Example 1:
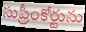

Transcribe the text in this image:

సుప్రీంకోర్టును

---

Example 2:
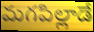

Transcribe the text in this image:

మగపిల్లాడే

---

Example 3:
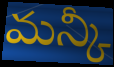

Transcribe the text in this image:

మన్కీ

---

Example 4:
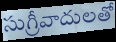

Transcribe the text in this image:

సుగ్రీవాదులతో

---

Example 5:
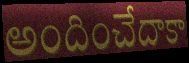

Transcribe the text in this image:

అందించేదాకా